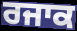
ਰਜਾਕ